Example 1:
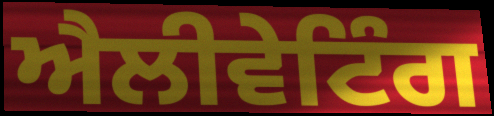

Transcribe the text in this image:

ਐਲੀਵੇਟਿੰਗ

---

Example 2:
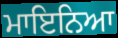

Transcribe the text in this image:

ਮਾਇਨਿਆ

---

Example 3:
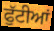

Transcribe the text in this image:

ਫੁੱਟੀਆਂ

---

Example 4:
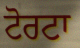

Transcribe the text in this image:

ਟੋਰਟਾ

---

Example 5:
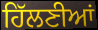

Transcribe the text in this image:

ਹਿੱਲਣੀਆਂ